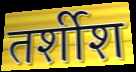
तर्शीश